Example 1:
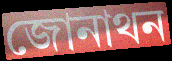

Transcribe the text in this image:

জোনাথন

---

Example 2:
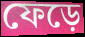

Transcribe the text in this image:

ফেড়ে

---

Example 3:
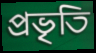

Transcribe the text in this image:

প্রভৃতি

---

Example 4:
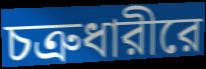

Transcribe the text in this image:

চত্রুধারীরে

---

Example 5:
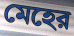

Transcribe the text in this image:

মেহের